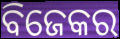
ବିଜେକର